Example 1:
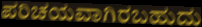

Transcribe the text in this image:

ಪರಿಚಯವಾಗಿರಬಹುದು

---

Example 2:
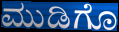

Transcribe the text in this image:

ಮುಡಿಗೊ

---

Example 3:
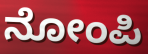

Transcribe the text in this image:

ನೋಂಪಿ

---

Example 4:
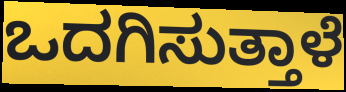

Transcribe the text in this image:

ಒದಗಿಸುತ್ತಾಳೆ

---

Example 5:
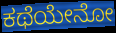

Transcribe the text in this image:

ಕಥೆಯೇನೋ